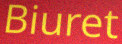
Biuret